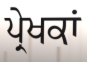
ਪ੍ਰੇਖਕਾਂ